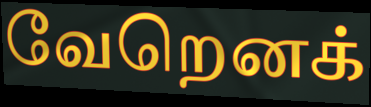
வேறெனக்